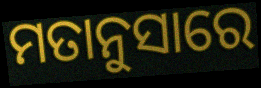
ମତାନୁସାରେ